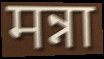
मन्ना